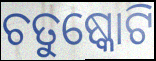
ଚତୁଷ୍କୋଟି